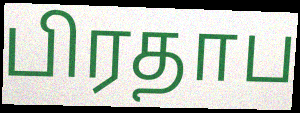
பிரதாப